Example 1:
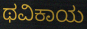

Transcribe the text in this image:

ಥವಿಕಾಯ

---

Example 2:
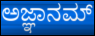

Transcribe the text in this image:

ಅಜ್ಞಾನಮ್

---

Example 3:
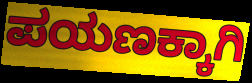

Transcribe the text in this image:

ಪಯಣಕ್ಕಾಗಿ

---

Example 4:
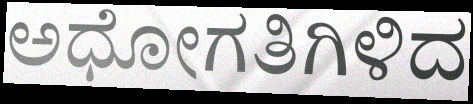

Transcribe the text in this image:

ಅಧೋಗತಿಗಿಳಿದ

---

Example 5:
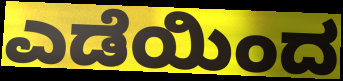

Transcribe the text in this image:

ಎಡೆಯಿಂದ